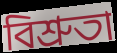
বিশ্রুতা